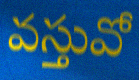
వస్తువో